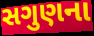
સગુણના